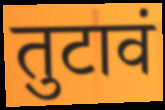
तुटावं